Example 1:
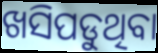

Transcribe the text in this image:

ଖସିପଡୁଥିବା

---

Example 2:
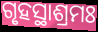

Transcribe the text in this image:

ଗୃହସ୍ଥାଶ୍ରମଃ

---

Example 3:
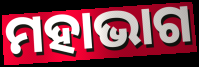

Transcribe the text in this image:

ମହାଭାଗ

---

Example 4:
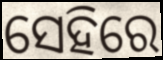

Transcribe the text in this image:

ସେହିରେ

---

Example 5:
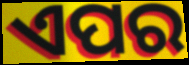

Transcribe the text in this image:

ଏପର